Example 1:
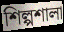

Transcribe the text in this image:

শিল্পশালা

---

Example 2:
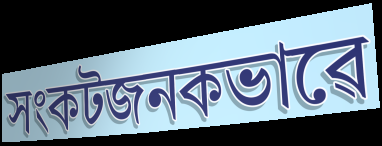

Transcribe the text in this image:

সংকটজনকভাৱে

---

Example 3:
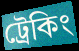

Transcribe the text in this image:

ট্ৰেকিং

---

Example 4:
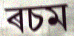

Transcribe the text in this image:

ৰচম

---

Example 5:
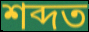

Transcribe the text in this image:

শব্দত